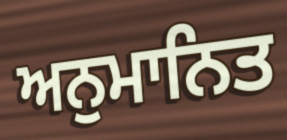
ਅਨੁਮਾਨਿਤ